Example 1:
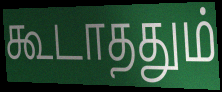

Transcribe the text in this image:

கூடாததும்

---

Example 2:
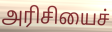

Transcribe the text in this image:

அரிசியைச்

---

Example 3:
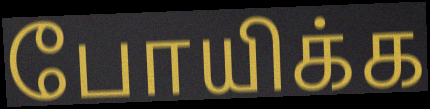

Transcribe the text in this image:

போயிக்க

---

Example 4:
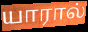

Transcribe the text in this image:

யாரால்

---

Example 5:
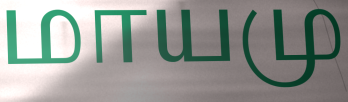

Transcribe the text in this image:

மாயமு